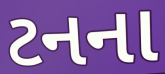
ટનના